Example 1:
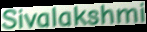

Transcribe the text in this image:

Sivalakshmi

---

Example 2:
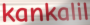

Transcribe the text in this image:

kankalil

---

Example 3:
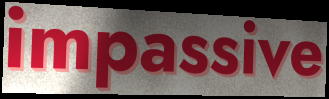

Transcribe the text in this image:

impassive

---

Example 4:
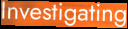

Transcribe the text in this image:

Investigating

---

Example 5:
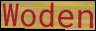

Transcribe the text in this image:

Woden